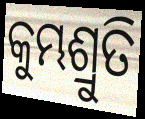
କୁମ୍ଭଶ୍ରୁତି